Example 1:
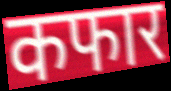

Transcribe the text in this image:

कफार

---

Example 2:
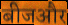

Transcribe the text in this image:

बीजऔर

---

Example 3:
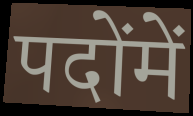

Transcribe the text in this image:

पदोंमें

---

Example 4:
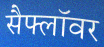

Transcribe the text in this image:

सैफ्लॉवर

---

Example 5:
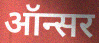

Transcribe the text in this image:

ऑन्सर